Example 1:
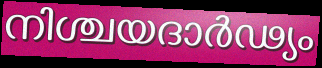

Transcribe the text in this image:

നിശ്ചയദാർഢ്യം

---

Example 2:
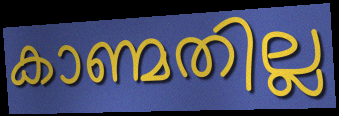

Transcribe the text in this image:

കാണ്മതില്ല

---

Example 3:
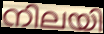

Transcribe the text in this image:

നിലയി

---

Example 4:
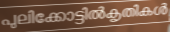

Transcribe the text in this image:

പുലിക്കോട്ടിൽകൃതികൾ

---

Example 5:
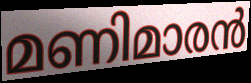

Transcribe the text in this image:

മണിമാരൻ